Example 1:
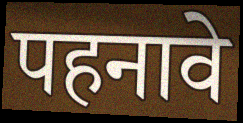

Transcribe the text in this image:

पहनावे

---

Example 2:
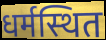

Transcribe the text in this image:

धर्मस्थित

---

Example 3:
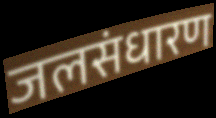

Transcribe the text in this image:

जलसंधारण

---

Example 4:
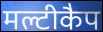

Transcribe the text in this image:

मल्टीकैप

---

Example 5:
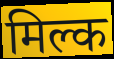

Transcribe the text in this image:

मिल्क